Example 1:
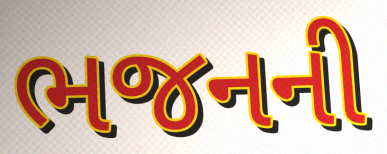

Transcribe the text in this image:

ભજનની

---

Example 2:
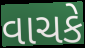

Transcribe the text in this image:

વાચકે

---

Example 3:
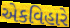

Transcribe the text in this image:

એકવિહારે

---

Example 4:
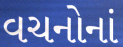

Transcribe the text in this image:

વચનોનાં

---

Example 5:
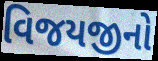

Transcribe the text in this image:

વિજયજીનો